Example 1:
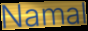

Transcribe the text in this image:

Namal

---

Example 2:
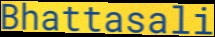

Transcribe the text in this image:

Bhattasali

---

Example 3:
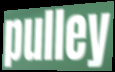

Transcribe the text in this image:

pulley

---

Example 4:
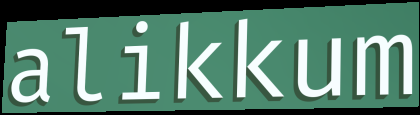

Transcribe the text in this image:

alikkum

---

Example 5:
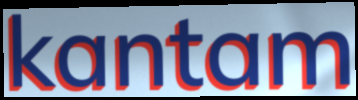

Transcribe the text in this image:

kantam